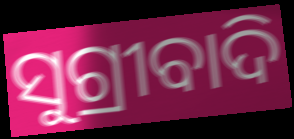
ସୁଗ୍ରୀବାଦି